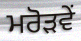
ਮਰੋੜਵੇਂ